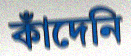
কাঁদেনি